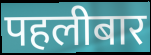
पहलीबार